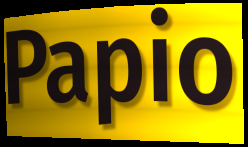
Papio